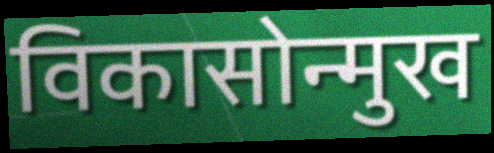
विकासोन्मुख